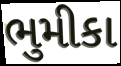
ભુમીકા